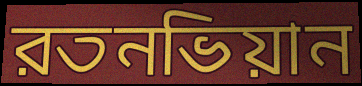
রতনভিয়ান